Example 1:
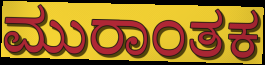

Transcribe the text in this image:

ಮುರಾಂತಕ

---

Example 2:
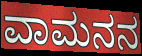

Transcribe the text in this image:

ವಾಮನನ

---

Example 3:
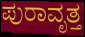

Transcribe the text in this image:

ಪುರಾವೃತ್ತ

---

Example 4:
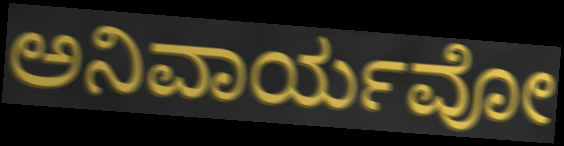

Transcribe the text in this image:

ಅನಿವಾರ್ಯವೋ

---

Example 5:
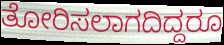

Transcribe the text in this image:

ತೋರಿಸಲಾಗದಿದ್ದರೂ